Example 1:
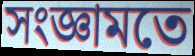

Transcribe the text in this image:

সংজ্ঞামতে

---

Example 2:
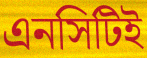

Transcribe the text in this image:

এনসিটিই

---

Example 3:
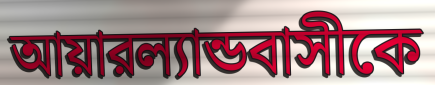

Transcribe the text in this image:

আয়ারল্যান্ডবাসীকে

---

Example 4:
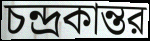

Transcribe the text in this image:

চন্দ্রকান্তর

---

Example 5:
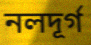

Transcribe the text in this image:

নলদূর্গ